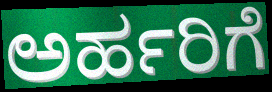
ಅರ್ಹರಿಗೆ